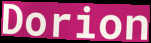
Dorion